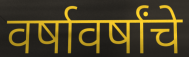
वर्षावर्षांचे